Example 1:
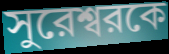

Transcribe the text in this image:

সুরেশ্বরকে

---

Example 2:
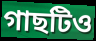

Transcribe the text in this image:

গাছটিও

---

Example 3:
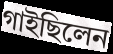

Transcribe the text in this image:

গাইছিলেন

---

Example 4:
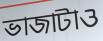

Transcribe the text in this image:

ভাজাটাও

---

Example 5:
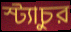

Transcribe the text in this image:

স্ট্যাচুর